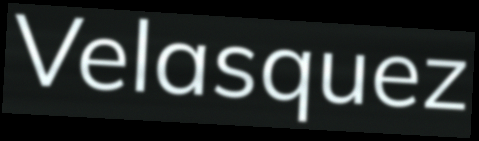
Velasquez